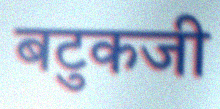
बटुकजी